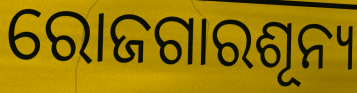
ରୋଜଗାରଶୂନ୍ୟ